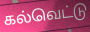
கல்வெட்டு